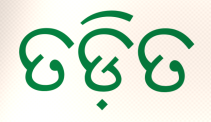
ତଡ଼ିତ